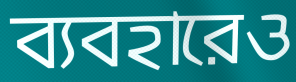
ব্যবহারেও